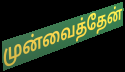
முன்வைத்தேன்